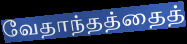
வேதாந்தத்தைத்